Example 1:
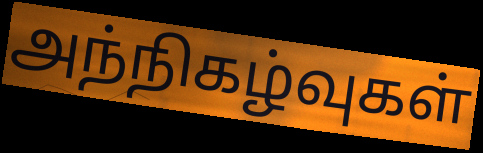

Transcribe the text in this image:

அந்நிகழ்வுகள்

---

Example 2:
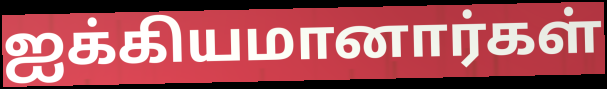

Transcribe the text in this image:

ஐக்கியமானார்கள்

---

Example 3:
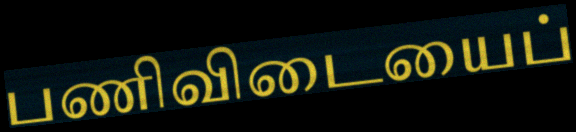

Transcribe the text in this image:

பணிவிடையைப்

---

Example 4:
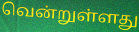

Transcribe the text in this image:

வென்றுள்ளது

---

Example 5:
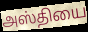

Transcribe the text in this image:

அஸ்தியை